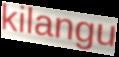
kilangu